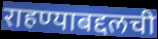
राहण्याबद्दलची